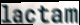
lactam